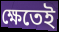
ক্ষেতেই